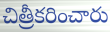
చిత్రీకరించారు